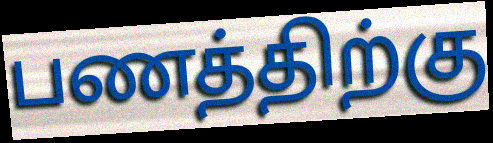
பணத்திற்கு